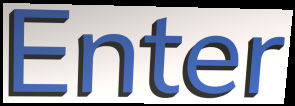
Enter